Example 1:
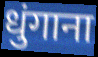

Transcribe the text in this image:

धुंगाना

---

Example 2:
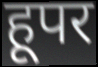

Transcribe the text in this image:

हूपर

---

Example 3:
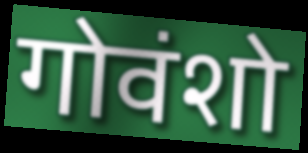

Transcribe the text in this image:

गोवंशो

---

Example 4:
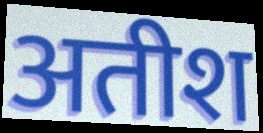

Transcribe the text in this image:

अतीश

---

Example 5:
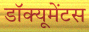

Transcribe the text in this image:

डॉक्यूमेंटस